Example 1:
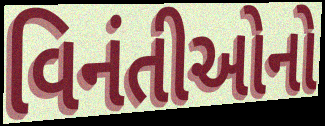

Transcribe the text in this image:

વિનંતીઓનો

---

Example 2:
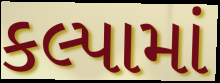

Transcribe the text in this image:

કલ્પામાં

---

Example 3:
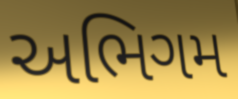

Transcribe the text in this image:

અભિગમ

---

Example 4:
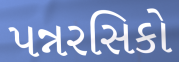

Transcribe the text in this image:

પન્નરસિકો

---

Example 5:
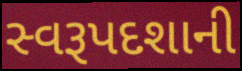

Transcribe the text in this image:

સ્વરૂપદશાની